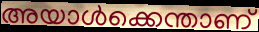
അയാൾക്കെന്താണ്